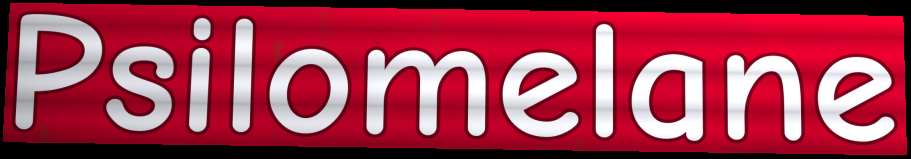
Psilomelane